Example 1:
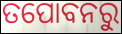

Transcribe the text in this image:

ତପୋବନରୁ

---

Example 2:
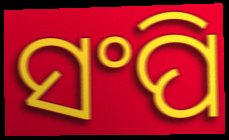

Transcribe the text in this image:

ସଂପି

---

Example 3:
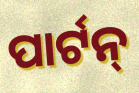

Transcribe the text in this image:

ପାର୍ଟନ୍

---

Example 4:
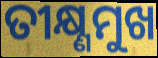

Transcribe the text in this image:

ତୀକ୍ଷ୍ଣମୁଖ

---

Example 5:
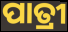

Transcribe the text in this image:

ପାତ୍ରୀ